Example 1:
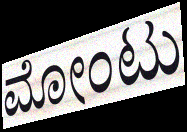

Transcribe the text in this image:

ಮೋಂಟು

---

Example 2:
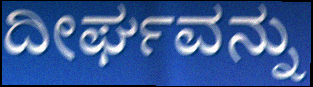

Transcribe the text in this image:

ದೀರ್ಘವನ್ನು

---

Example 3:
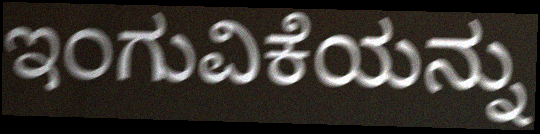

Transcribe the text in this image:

ಇಂಗುವಿಕೆಯನ್ನು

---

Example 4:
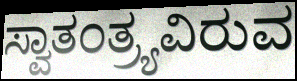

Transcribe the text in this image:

ಸ್ವಾತಂತ್ರ್ಯವಿರುವ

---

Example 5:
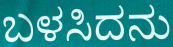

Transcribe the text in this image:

ಬಳಸಿದನು